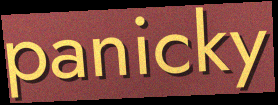
panicky